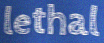
lethal